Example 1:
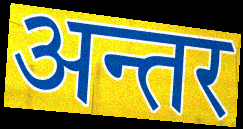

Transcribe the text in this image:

अन्तर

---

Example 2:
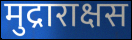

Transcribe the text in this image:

मुद्राराक्षस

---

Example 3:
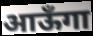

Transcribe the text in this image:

आऊँगा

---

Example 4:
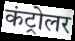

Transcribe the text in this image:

कंट्रोलर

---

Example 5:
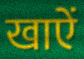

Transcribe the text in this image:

खाऐं